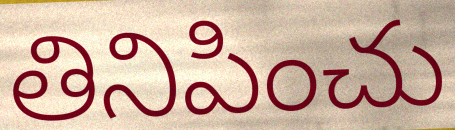
తినిపించు